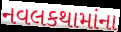
નવલકથામાંના